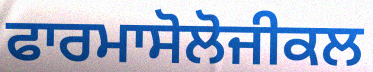
ਫਾਰਮਾਸੋਲੋਜੀਕਲ